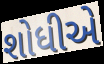
શોધીએ